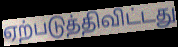
ஏற்படுத்திவிட்டது